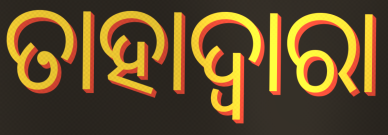
ତାହାଦ୍ଵାରା